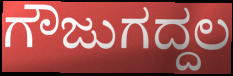
ಗೌಜುಗದ್ದಲ